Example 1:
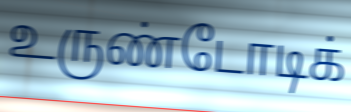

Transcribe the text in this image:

உருண்டோடிக்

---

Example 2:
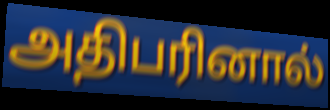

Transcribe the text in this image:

அதிபரினால்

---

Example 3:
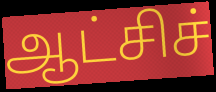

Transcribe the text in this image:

ஆட்சிச்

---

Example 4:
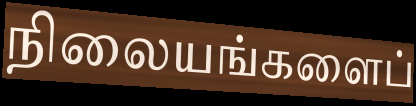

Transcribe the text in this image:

நிலையங்களைப்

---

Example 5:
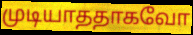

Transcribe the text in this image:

முடியாததாகவோ